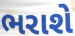
ભરાશે